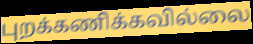
புறக்கணிக்கவில்லை